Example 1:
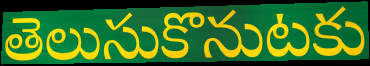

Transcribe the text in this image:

తెలుసుకొనుటకు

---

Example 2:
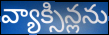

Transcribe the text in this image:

వ్యాక్సిన్లను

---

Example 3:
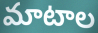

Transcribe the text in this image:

మాటాల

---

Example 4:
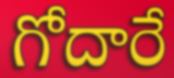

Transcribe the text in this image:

గోదారే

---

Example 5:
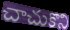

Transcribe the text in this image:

చాచుకొని